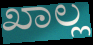
ಖಾಲ್ಲ